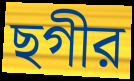
ছগীর